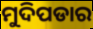
ମୁଦିପଡାର